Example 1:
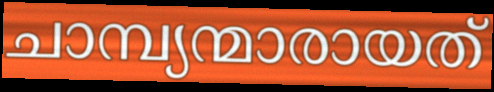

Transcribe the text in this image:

ചാമ്പ്യന്മാരായത്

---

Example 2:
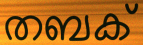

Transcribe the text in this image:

തബക്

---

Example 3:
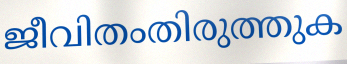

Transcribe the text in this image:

ജീവിതംതിരുത്തുക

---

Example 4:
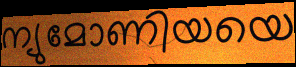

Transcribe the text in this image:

ന്യുമോണിയയെ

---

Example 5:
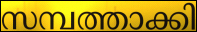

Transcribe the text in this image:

സമ്പത്താക്കി